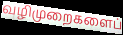
வழிமுறைகளைப்